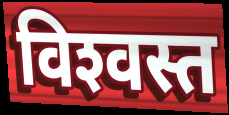
विश्‍वस्त